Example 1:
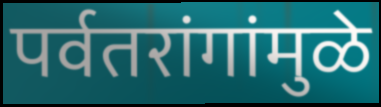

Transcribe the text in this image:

पर्वतरांगांमुळे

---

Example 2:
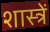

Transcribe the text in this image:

शास्त्रें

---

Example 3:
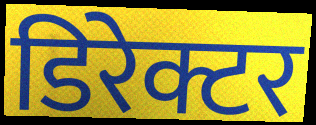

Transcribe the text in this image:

डिरेक्टर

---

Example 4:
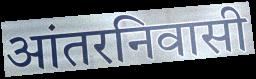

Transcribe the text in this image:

आंतरनिवासी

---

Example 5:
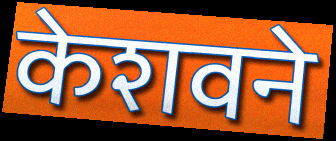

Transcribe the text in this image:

केशवने